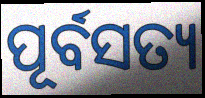
ପୂର୍ବସତ୍ୟ